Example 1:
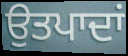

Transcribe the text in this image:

ਉਤਪਾਦਾਂ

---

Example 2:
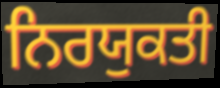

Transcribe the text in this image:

ਨਿਰਯੁਕਤੀ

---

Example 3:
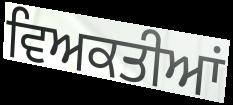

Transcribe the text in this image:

ਵਿਅਕਤੀਆਂ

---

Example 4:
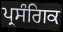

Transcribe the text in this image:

ਪ੍ਰਸੰਗਿਕ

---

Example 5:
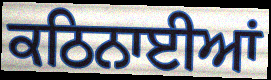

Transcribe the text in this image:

ਕਠਿਨਾਈਆਂ